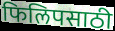
फिलिपसाठी